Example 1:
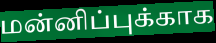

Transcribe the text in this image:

மன்னிப்புக்காக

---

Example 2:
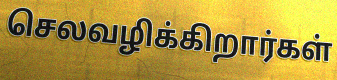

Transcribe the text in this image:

செலவழிக்கிறார்கள்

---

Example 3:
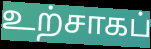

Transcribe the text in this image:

உற்சாகப்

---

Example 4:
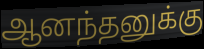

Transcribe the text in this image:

ஆனந்தனுக்கு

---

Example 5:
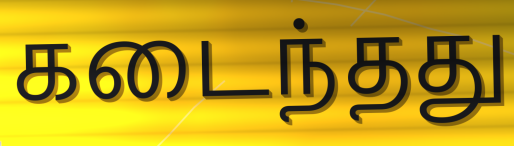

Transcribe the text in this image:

கடைந்தது